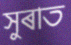
সুৰাত